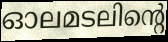
ഓലമടലിന്റെ